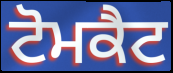
ਟੋਮਕੈਟ